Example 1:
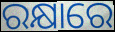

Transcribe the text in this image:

ରକ୍ଷାରେ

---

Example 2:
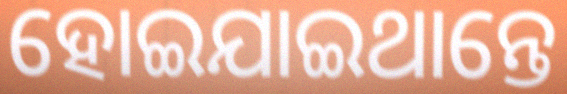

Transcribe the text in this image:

ହୋଇଯାଇଥାନ୍ତେ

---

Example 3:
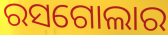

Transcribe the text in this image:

ରସଗୋଲାର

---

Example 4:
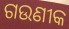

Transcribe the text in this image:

ଗଉଣୀକ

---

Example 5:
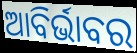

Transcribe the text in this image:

ଆବିର୍ଭାବର